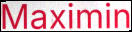
Maximin